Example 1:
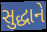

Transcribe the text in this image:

સુદ્ધાને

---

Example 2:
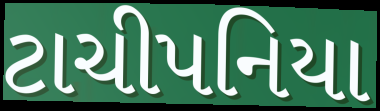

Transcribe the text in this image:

ટાચીપનિયા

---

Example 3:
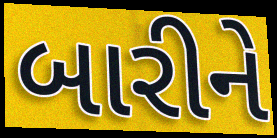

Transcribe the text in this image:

બારીને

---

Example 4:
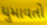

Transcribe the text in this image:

ઘુમાવતો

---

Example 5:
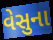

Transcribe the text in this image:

વેસુના